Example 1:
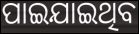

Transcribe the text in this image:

ପାଇଯାଇଥିବ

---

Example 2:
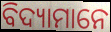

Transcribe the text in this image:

ବିଦ୍ୟାମାନେ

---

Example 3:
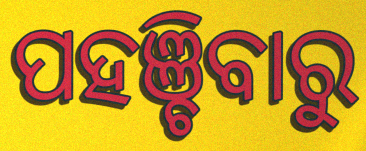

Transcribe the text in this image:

ପହଞ୍ଚିବାରୁ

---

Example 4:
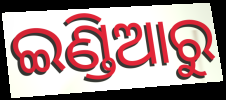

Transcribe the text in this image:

ଇଣ୍ଡିଆରୁ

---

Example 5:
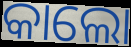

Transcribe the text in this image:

କାଲୋ